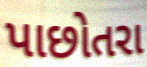
પાછોતરા